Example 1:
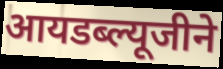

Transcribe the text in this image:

आयडब्ल्यूजीने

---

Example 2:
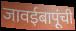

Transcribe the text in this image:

जावईबापूंची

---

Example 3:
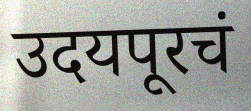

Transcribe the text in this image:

उदयपूरचं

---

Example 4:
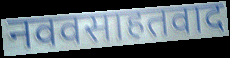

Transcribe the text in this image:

नववसाहतवाद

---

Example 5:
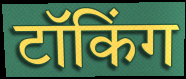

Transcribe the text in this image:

टॉकिंग